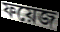
ফয়েজ